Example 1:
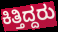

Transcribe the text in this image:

ಕಿತ್ತಿದ್ದರು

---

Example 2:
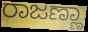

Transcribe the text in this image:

ರಾಜಣ್ಣಾ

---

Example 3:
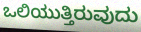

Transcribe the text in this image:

ಒಲಿಯುತ್ತಿರುವುದು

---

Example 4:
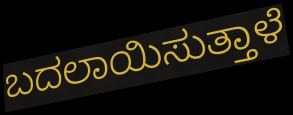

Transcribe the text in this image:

ಬದಲಾಯಿಸುತ್ತಾಳೆ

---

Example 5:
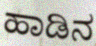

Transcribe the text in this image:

ಹಾಡಿನ